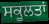
ਸਕੂਲਤਾਂ